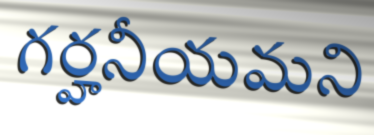
గర్హనీయమని